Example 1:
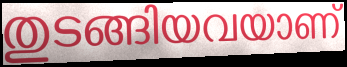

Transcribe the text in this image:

തുടങ്ങിയവയാണ്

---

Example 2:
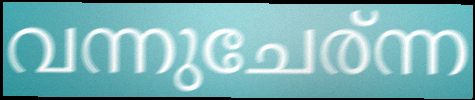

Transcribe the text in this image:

വന്നുചേര്ന്ന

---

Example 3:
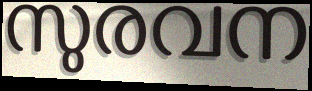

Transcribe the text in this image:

സുരവന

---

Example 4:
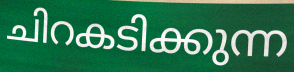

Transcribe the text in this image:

ചിറകടിക്കുന്ന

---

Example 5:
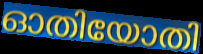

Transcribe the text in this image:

ഓതിയോതി